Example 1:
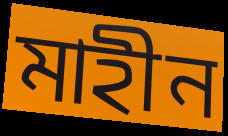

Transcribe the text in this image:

মাহীন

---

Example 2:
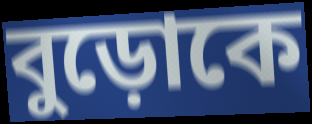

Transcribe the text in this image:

বুড়োকে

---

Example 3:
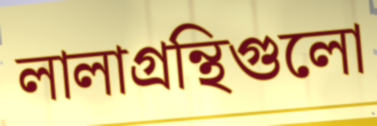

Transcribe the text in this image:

লালাগ্রন্থিগুলো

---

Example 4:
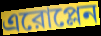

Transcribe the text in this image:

এরোপ্লেন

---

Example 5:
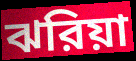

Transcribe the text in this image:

ঝরিয়া